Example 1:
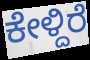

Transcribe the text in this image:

ಕೇಳ್ದಿರೆ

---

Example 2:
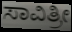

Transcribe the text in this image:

ಸಾವಿತ್ರೀ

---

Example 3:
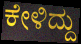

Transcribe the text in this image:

ಕೇಳಿದ್ದು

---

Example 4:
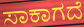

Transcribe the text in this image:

ಸಾಕಾಗದೆ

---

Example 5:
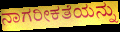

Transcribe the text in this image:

ನಾಗರೀಕತೆಯನ್ನು